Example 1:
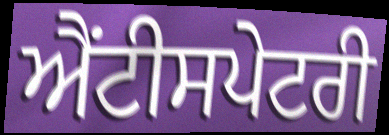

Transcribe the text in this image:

ਐਂਟੀਸਪੇਟਰੀ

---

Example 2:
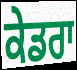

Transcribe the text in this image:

ਕੇਡਰਾ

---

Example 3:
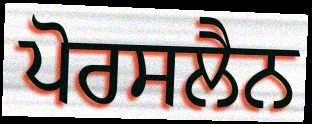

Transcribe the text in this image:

ਪੋਰਸਲੈਨ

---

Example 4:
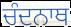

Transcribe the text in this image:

ਚੰਦਨਾਥ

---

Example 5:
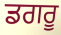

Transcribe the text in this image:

ਡਗਰੂ